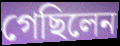
গেছিলেন